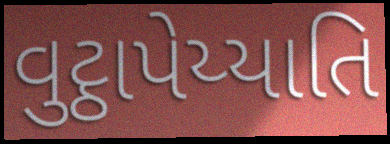
વુટ્ઠાપેય્યાતિ